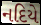
નદિયે